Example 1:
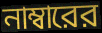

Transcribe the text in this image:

নাম্বারের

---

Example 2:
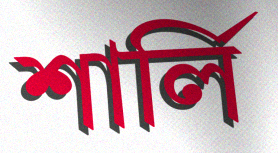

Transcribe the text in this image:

শার্লি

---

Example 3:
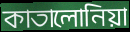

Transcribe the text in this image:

কাতালোনিয়া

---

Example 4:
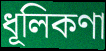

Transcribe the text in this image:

ধূলিকণা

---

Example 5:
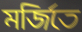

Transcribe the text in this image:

মর্জিতে